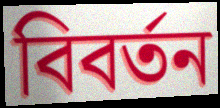
বিবৰ্তন